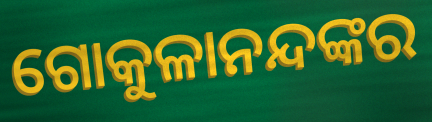
ଗୋକୁଳାନନ୍ଦଙ୍କର